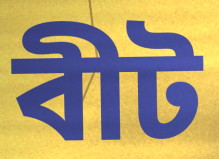
বীট